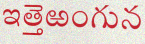
ఇత్తెఱంగున